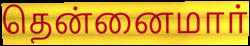
தென்னைமார்